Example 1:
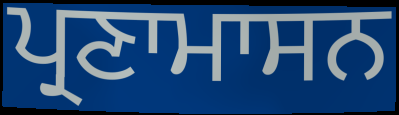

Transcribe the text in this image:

ਪ੍ਰਣਾਮਾਸਨ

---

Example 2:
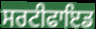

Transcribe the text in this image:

ਸਰਟੀਫਾਇਡ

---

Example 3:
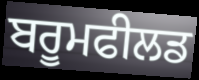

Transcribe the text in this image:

ਬਰੂਮਫੀਲਡ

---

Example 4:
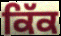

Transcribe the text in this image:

ਕਿੱਕ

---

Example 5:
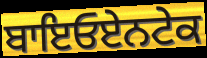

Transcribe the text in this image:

ਬਾਇਓਏਨਟੇਕ